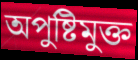
অপুষ্টিমুক্ত